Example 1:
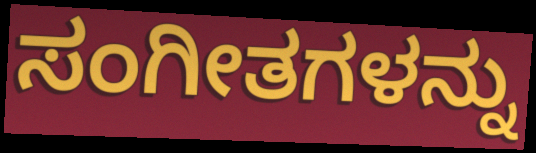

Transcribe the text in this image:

ಸಂಗೀತಗಳನ್ನು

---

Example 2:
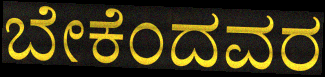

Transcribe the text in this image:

ಬೇಕೆಂದವರ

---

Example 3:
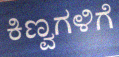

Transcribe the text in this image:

ಕಿಣ್ವಗಳಿಗೆ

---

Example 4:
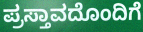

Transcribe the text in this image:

ಪ್ರಸ್ತಾವದೊಂದಿಗೆ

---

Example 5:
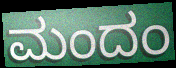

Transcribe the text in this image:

ಮಂದಂ